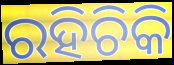
ରହିଚିକି